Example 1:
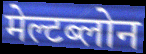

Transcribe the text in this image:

मेल्टब्लोन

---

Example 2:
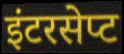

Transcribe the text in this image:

इंटरसेप्ट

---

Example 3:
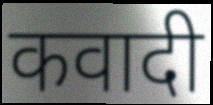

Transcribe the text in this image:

कवादी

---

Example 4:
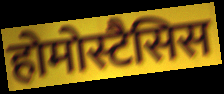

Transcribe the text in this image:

होमोस्टैसिस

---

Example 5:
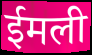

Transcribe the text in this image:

ईमली